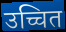
उच्चित